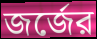
জর্জের